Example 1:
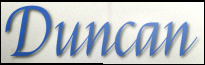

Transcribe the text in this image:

Duncan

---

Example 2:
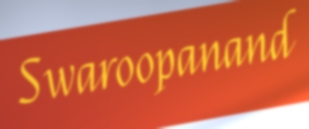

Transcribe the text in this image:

Swaroopanand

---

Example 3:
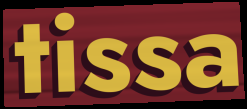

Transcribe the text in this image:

tissa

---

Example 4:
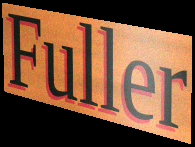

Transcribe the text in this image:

Fuller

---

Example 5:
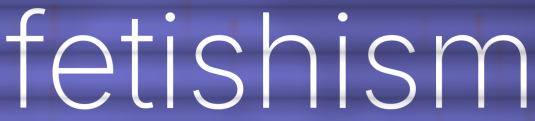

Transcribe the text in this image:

fetishism